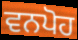
ਵਨਪੋਹ